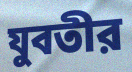
যুবতীর